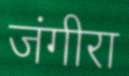
जंगीरा